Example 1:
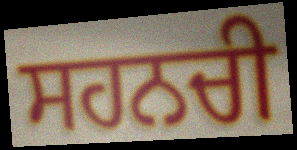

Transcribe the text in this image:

ਸਹਨਚੀ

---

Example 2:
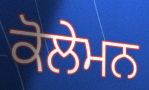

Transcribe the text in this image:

ਕੋਲੇਮਨ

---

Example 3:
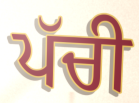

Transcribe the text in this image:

ਪੱਚੀ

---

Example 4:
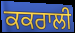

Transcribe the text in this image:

ਕਕਰਾਲੀ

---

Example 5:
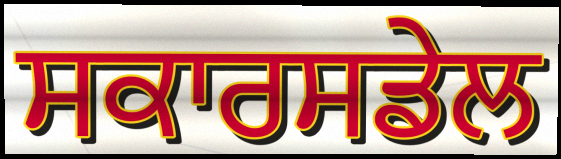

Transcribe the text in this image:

ਸਕਾਰਸਡੇਲ